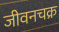
जीवनचक्र